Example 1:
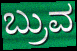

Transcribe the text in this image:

ಬ್ರುವ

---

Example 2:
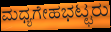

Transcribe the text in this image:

ಮಧ್ಯಗೇಹಭಟ್ಟರು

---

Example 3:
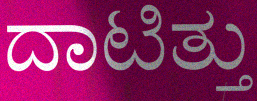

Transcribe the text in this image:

ದಾಟಿತ್ತು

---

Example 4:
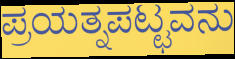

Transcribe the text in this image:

ಪ್ರಯತ್ನಪಟ್ಟವನು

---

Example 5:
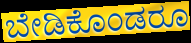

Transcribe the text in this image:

ಬೇಡಿಕೊಂಡರೂ